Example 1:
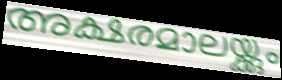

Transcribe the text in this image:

അക്ഷരമാലയ്ക്കും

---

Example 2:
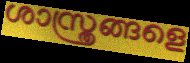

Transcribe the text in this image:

ശാസ്ത്രങ്ങളെ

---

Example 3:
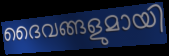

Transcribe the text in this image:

ദൈവങ്ങളുമായി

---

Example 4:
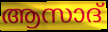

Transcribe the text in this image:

ആസാദ്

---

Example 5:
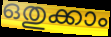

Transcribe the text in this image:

ഒതുക്കാം